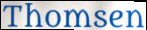
Thomsen